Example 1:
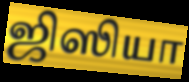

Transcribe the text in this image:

ஜிஸியா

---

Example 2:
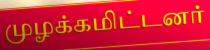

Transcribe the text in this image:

முழக்கமிட்டனர்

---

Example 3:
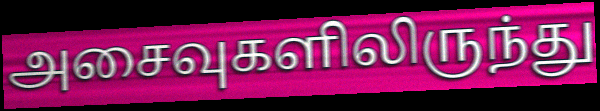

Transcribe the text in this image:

அசைவுகளிலிருந்து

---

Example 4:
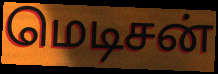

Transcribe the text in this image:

மெடிசன்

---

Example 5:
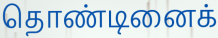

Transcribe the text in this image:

தொண்டினைக்